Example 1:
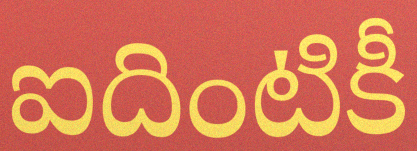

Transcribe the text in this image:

ఐదింటికీ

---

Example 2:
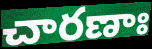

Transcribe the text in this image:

చారణాః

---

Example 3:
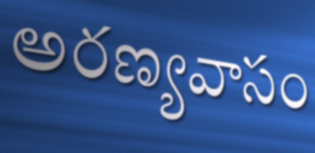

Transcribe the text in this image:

అరణ్యవాసం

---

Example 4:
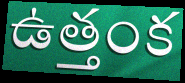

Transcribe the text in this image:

ఉత్తంక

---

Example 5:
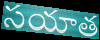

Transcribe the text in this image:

సయాత